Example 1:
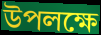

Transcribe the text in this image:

উপলক্ষে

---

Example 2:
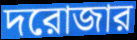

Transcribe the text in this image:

দরোজার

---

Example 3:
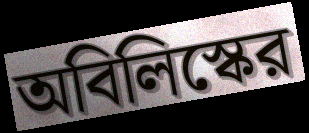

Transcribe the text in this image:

অবিলিস্কের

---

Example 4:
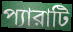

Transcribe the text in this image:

প্যারাটি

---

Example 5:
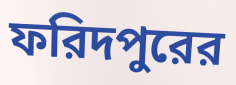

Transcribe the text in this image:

ফরিদপুরের